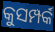
କୁସମ୍ପର୍କ